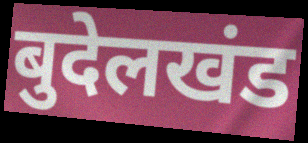
बुदेलखंड